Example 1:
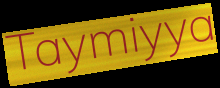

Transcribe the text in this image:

Taymiyya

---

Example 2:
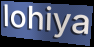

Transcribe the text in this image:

lohiya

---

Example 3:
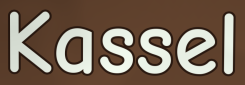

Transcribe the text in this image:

Kassel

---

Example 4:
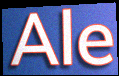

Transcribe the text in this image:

Ale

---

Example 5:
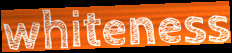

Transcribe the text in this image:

whiteness